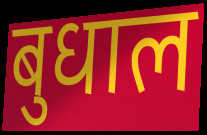
बुधाल